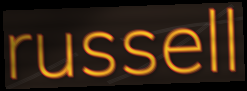
russell